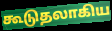
கூடுதலாகிய